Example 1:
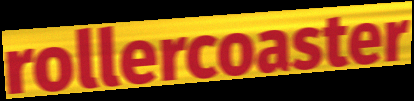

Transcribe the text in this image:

rollercoaster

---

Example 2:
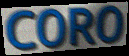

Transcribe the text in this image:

CORO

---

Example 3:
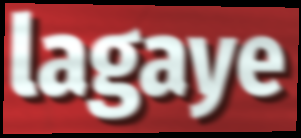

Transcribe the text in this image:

lagaye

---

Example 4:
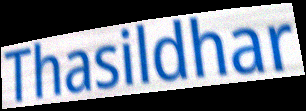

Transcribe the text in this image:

Thasildhar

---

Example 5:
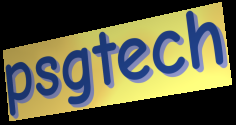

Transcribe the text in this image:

psgtech